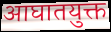
आघातयुक्त